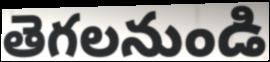
తెగలనుండి